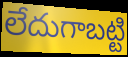
లేదుగాబట్టి